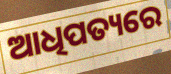
ଆଧିପତ୍ୟରେ